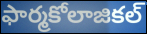
ఫార్మకోలాజికల్